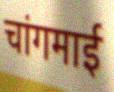
चांगमाई